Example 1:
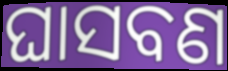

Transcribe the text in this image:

ଘାସବଣ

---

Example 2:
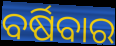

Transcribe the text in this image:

ବର୍ଷିବାର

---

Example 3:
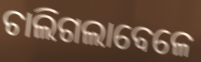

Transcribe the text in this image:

ଚାଲିଗଲାବେଳେ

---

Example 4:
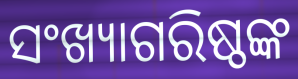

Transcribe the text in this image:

ସଂଖ୍ୟାଗରିଷ୍ଠଙ୍କ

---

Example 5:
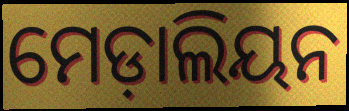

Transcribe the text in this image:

ମେଡ଼ାଲିୟନ